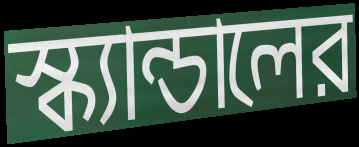
স্ক্যান্ডালের